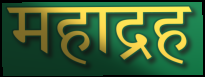
महाद्रह